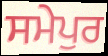
ਸਮੇਪੁਰ